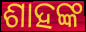
ଶାହଙ୍କ